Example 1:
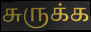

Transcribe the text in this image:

சுருக்க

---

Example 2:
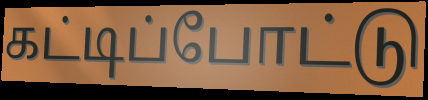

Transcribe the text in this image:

கட்டிப்போட்டு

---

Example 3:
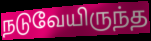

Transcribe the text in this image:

நடுவேயிருந்த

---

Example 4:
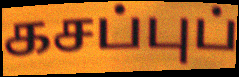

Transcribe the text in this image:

கசப்புப்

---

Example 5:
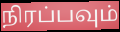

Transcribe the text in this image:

நிரப்பவும்